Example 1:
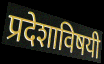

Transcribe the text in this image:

प्रदेशाविषयी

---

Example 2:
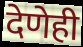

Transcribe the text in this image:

देणेही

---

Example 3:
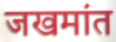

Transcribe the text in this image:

जखमांत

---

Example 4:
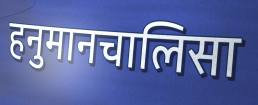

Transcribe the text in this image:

हनुमानचालिसा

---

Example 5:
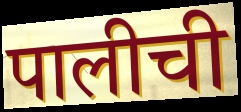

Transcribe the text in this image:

पालीची